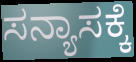
ಸನ್ಯಾಸಕ್ಕೆ